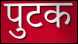
पुटक